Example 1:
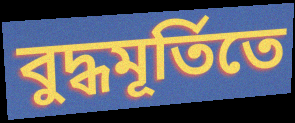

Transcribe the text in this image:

বুদ্ধমূর্তিতে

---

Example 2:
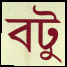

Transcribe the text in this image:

বটু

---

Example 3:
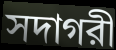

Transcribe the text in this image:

সদাগরী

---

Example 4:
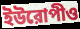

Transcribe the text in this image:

ইউরোপীও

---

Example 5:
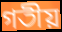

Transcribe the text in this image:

গতীয়